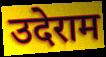
उदेराम